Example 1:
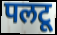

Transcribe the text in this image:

पलटू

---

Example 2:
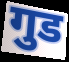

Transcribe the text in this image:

गुड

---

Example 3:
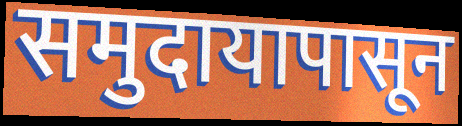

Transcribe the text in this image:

समुदायापासून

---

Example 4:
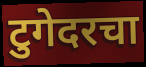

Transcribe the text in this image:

टुगेदरचा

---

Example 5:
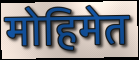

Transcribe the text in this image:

मोहिमेत